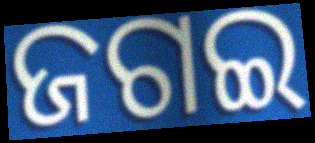
ଜଗଇ